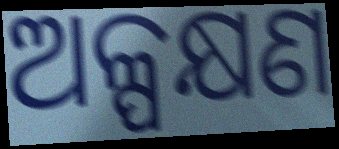
ଅଳ୍ପକ୍ଷଣ